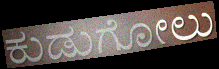
ಕುಡುಗೋಲು